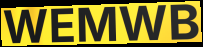
WEMWB